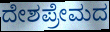
ದೇಶಪ್ರೇಮದ